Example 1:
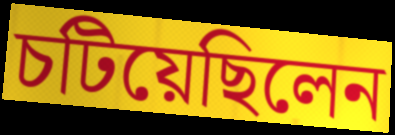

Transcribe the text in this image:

চটিয়েছিলেন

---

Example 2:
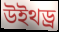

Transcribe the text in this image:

উইথড্র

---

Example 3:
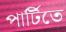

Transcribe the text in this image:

পার্টিতে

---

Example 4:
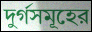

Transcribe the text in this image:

দুর্গসমূহের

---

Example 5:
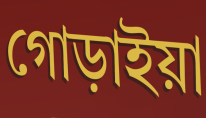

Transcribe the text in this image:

গোড়াইয়া